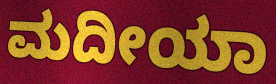
ಮದೀಯಾ